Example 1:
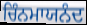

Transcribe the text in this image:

ਚਿੰਨਮਾਯਨੰਦ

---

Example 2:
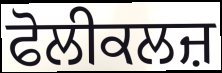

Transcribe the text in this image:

ਫੋਲੀਕਲਜ਼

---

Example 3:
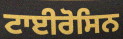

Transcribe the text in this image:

ਟਾਈਰੋਸਿਨ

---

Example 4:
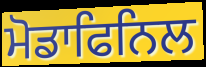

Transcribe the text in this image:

ਮੋਡਾਫਿਨਿਲ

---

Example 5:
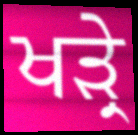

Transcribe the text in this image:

ਖੜ੍ਰੇ